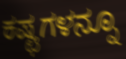
ಕಷ್ಟಗಳನ್ನೂ